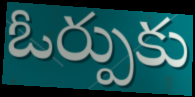
ఓర్పుకు